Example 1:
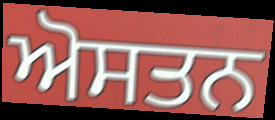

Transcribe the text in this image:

ਅੋਸਤਨ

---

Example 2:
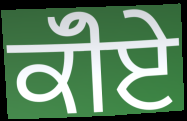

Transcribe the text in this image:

ਕੱੀਏ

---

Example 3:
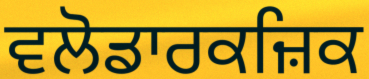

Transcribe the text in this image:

ਵਲੋਡਾਰਕਜ਼ਿਕ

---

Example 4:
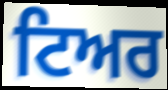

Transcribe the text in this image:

ਟਿਅਰ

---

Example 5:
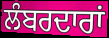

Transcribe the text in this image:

ਲੰਬਰਦਾਰਾਂ